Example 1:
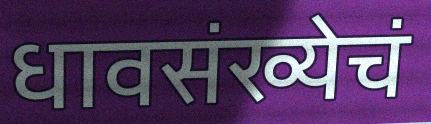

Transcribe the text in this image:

धावसंख्येचं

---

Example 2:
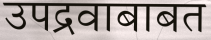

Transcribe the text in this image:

उपद्रवाबाबत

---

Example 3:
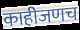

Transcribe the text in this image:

काहीजणच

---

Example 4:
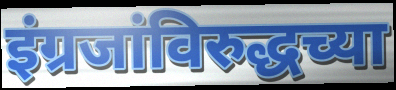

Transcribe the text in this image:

इंग्रजांविरुद्धच्या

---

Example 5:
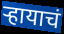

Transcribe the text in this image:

ऱ्हायाचं